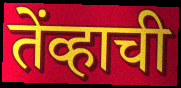
तेंव्हाची